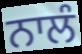
ਨਾਲੰ